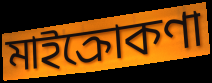
মাইক্রোকণা